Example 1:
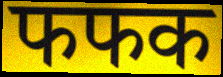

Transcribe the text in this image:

फफक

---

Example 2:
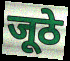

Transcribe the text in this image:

जूठे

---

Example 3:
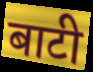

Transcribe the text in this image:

बाटी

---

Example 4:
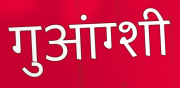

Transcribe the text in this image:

गुआंग्शी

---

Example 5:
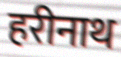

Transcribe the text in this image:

हरीनाथ